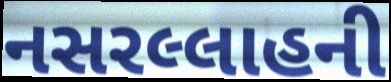
નસરલ્લાહની